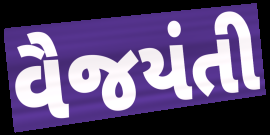
વૈજયંતી